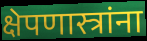
क्षेपणास्त्रांना